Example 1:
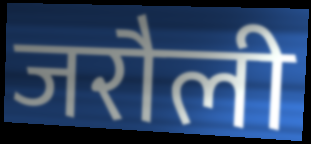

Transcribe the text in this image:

जरौली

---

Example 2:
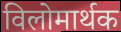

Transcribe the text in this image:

विलोमार्थक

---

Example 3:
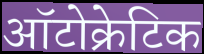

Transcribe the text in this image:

ऑटोक्रेटिक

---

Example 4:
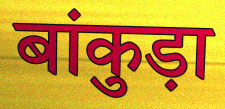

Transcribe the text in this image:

बांकुड़ा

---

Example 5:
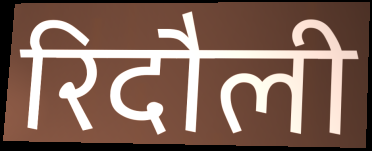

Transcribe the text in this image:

रिदौली